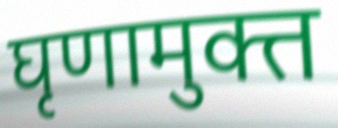
घृणामुक्त